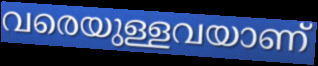
വരെയുള്ളവയാണ്